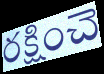
రక్షించె